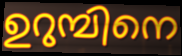
ഉറുമ്പിനെ